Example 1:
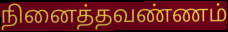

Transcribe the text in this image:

நினைத்தவண்ணம்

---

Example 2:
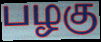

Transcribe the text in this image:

பழகு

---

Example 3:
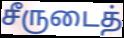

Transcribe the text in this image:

சீருடைத்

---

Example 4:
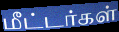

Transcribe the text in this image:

மீட்டர்கள்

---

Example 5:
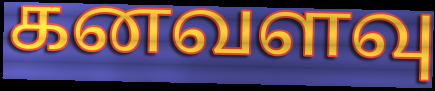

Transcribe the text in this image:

கனவளவு